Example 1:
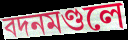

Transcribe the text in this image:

বদনমণ্ডলে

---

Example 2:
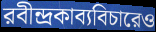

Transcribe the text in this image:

রবীন্দ্রকাব্যবিচারেও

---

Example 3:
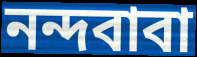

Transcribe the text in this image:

নন্দবাবা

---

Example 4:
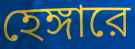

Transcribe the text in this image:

হেঙ্গারে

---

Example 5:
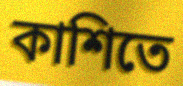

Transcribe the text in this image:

কাশিতে